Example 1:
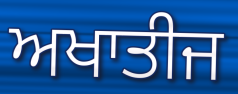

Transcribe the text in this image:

ਅਖਾਤੀਜ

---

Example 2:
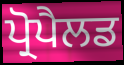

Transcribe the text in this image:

ਪ੍ਰੋਪੈਲਡ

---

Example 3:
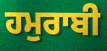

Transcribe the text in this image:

ਹਮੁਰਾਬੀ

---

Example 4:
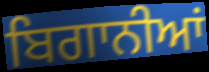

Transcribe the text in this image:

ਬਿਗਾਨੀਆਂ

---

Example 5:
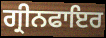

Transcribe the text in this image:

ਗ੍ਰੀਨਫਾਇਰ